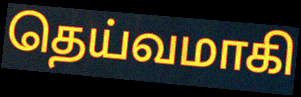
தெய்வமாகி